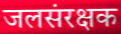
जलसंरक्षक